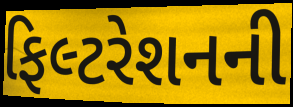
ફિલ્ટરેશનની